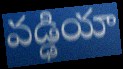
వడ్ఢియా